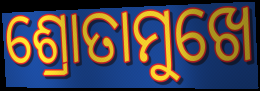
ଶ୍ରୋତାମୁଖେ